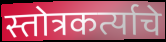
स्तोत्रकर्त्याचे